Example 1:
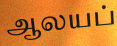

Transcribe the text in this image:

ஆலயப்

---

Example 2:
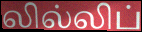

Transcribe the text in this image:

லில்லிப்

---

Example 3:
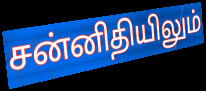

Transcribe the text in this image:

சன்னிதியிலும்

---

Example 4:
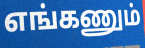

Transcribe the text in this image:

எங்கணும்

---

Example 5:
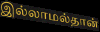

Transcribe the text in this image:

இல்லாமல்தான்